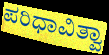
ಪರಿಧಾವಿತ್ವಾ